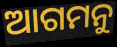
ଆଗମନୁ